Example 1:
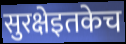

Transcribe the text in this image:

सुरक्षेइतकेच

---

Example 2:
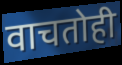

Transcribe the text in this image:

वाचतोही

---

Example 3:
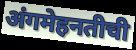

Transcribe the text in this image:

अंगमेहनतीची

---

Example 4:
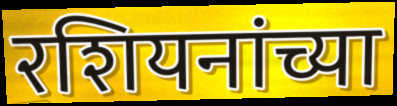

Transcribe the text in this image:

रशियनांच्या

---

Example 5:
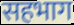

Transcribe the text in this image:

सहभाग